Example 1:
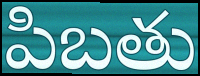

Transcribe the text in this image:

పిబతు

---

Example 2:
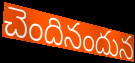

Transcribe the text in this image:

చెందినందున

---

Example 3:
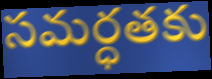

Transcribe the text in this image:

సమర్ధతకు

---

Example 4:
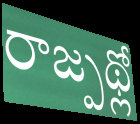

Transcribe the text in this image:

రాజ్పథ్లో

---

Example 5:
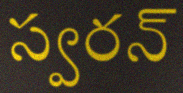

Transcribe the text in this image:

స్వరన్